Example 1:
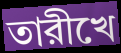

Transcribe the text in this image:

তারীখে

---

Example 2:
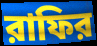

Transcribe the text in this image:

রাফির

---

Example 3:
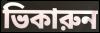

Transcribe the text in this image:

ভিকারুন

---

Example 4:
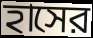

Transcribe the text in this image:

হাসের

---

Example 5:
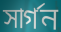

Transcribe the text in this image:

সার্গন